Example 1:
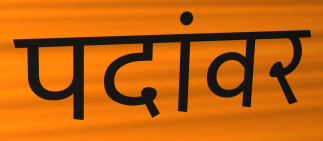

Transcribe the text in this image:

पदांवर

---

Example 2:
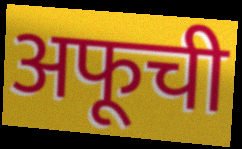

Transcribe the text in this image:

अफूची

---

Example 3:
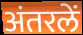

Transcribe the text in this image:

अंतरलें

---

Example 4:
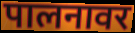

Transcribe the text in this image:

पालनावर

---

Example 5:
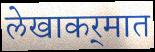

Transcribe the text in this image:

लेखाकर्मात